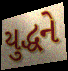
યુદ્ધને